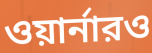
ওয়ার্নারও